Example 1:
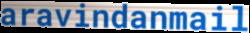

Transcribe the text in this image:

aravindanmail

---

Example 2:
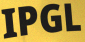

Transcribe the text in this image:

IPGL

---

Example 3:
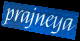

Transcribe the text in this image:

prajneya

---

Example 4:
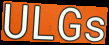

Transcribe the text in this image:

ULGs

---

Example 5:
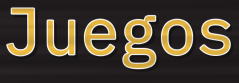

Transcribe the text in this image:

Juegos